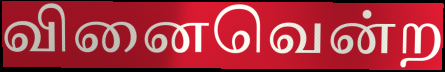
வினைவென்ற